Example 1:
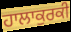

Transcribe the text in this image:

ਹਾਲਾਕੁਰਕੀ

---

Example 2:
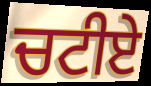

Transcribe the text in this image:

ਚਟੀਏ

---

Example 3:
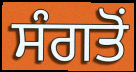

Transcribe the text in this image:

ਸੰਗਤੋਂ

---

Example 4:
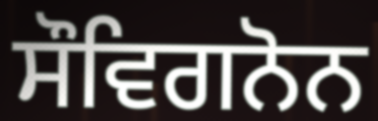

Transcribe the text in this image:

ਸੌਵਿਗਨੋਨ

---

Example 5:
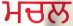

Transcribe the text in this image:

ਮਚਲ